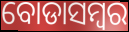
ବୋଡାସମ୍ବର